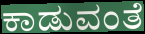
ಕಾಡುವಂತೆ